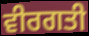
ਵੀਰਗਤੀ